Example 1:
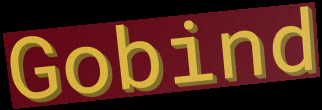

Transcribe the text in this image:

Gobind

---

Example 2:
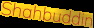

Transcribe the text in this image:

Shahbuddin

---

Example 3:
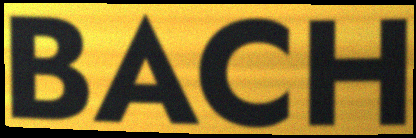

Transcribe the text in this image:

BACH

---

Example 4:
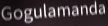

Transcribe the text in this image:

Gogulamanda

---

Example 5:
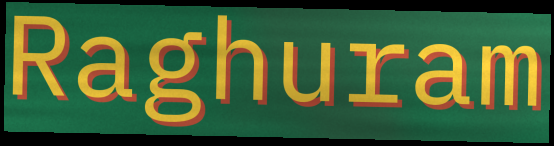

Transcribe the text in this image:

Raghuram